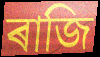
ৰাজি